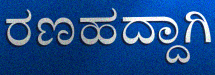
ರಣಹದ್ದಾಗಿ